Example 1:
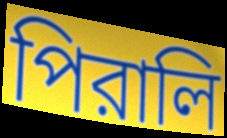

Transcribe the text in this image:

পিরালি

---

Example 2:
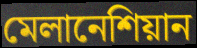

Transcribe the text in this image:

মেলানেশিয়ান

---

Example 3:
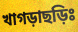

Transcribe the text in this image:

খাগড়াছড়িঃ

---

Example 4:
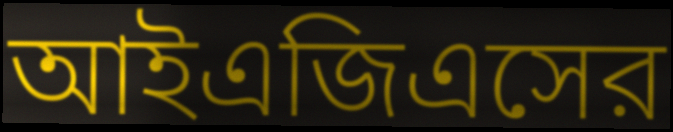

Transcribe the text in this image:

আইএজিএসের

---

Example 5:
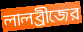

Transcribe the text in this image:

লালব্রীজের